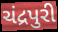
ચંદ્રપુરી